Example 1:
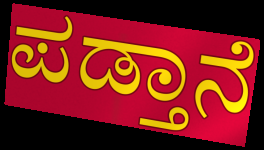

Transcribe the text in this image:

ಪಡ್ತಾನೆ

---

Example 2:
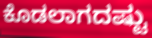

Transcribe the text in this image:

ಕೊಡಲಾಗದಷ್ಟು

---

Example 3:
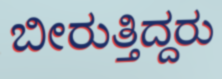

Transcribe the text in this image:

ಬೀರುತ್ತಿದ್ದರು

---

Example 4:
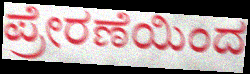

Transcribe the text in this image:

ಪ್ರೇರಣೆಯಿಂದ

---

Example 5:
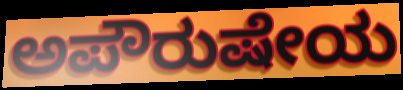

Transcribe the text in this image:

ಅಪೌರುಷೇಯ